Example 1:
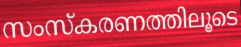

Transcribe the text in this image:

സംസ്കരണത്തിലൂടെ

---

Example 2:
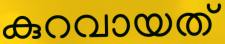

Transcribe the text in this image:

കുറവായത്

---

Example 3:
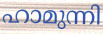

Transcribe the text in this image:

ഹാമുന്നി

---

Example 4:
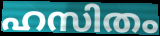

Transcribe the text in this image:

ഹസിതം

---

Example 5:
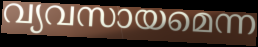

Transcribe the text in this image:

വ്യവസായമെന്ന